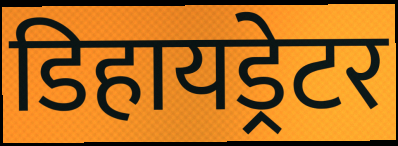
डिहायड्रेटर